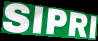
SIPRI